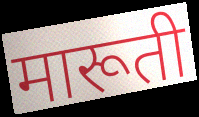
मारूती